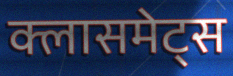
क्लासमेट्स